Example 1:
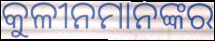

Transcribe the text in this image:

କୁଳୀନମାନଙ୍କର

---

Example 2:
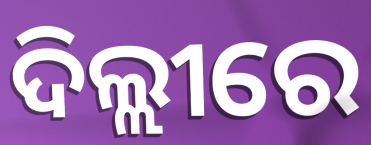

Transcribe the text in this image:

ଦିଲ୍ଲୀରେ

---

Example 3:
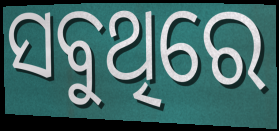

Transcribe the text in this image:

ସବୁଥିରେ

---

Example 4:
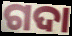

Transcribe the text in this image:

ଗଦା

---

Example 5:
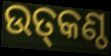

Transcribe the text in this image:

ଉତ୍‌କଣ୍ଠ